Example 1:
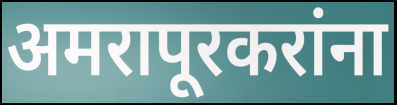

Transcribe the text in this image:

अमरापूरकरांना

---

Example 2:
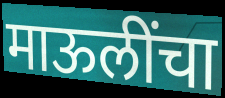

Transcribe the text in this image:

माऊलींचा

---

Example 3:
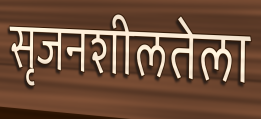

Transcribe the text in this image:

सृजनशीलतेला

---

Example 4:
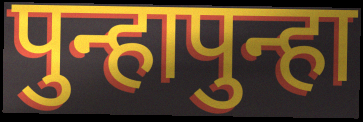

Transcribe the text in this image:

पुन्हापुन्हा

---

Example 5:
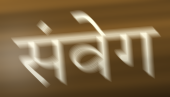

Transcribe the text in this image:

संवेग